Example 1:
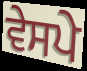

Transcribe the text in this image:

ਵੇਸਪੇ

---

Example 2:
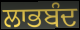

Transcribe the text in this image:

ਲਾਭਬੰਦ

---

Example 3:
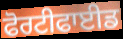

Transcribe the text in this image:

ਫੋਰਟੀਫਾਈਡ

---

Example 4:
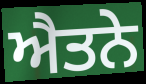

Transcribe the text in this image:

ਐਤਨੇ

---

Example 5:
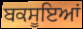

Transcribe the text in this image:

ਬਕਸੂਇਆਂ